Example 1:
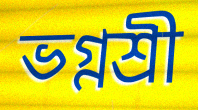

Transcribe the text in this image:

ভগ্নশ্রী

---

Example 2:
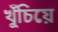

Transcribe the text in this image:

খুঁচিয়ে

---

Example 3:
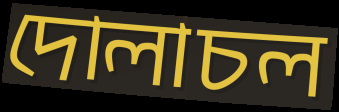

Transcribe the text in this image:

দোলাচল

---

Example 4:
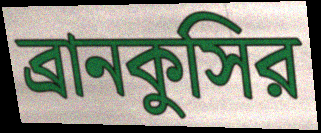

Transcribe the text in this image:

ব্রানকুসির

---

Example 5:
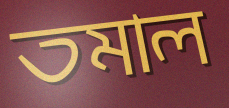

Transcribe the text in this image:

তমাল